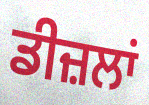
ਡੀਜ਼ਲਾਂ